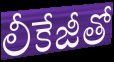
లీకేజీతో